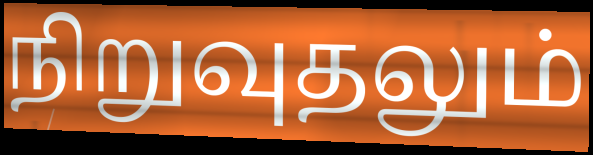
நிறுவுதலும்